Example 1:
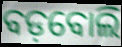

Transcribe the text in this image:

ବଡ଼ବୋଲି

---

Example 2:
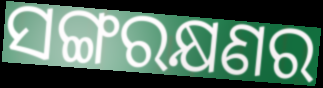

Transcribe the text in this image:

ସଙ୍ଗରକ୍ଷଣର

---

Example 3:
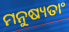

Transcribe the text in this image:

ମନୁଷ୍ୟତାଂ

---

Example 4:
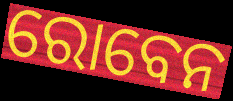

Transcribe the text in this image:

ରୋବେନ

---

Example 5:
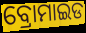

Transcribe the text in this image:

ବ୍ରୋମାଇଡ